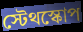
স্টেথস্কোপ